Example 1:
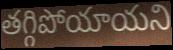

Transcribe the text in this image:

తగ్గిపోయాయని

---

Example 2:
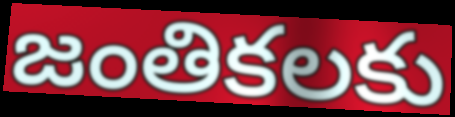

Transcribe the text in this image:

జంతికలకు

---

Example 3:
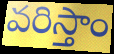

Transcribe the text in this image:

వరిస్తాం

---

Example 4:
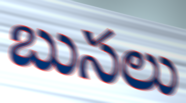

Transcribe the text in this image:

బుసలు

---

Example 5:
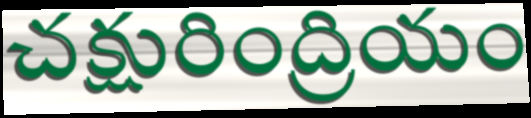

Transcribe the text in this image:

చక్షురింద్రియం